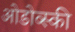
ओडोव्स्की